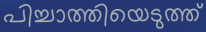
പിച്ചാത്തിയെടുത്ത്